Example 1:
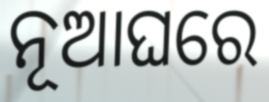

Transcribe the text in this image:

ନୂଆଘରେ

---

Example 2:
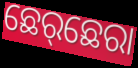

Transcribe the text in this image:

ଛେର୍‌ଛେରା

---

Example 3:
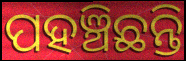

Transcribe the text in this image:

ପହଞ୍ଚିଛନ୍ତି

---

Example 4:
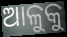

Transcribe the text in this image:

ଆଳୁକୁ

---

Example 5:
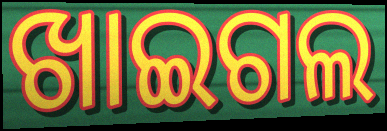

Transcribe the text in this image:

ଖାଇଗଲ